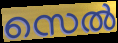
സെൽ